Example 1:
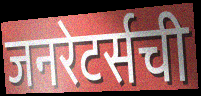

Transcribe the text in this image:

जनरेटर्सची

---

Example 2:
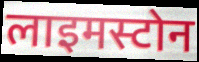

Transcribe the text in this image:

लाइमस्टोन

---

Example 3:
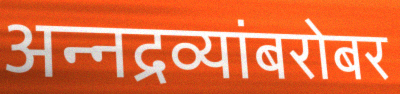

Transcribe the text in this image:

अन्नद्रव्यांबरोबर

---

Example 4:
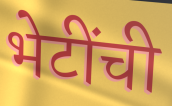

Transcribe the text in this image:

भेटींची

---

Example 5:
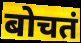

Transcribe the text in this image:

बोचतं